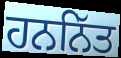
ਹਨਨਿੱਤ